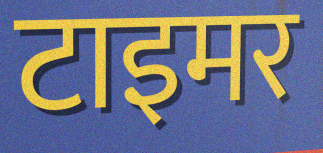
टाइमर